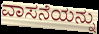
ವಾಸನೆಯನ್ನು